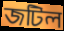
জটিল